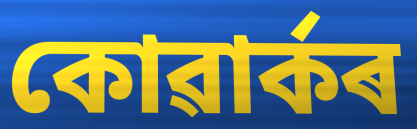
কোৱাৰ্কৰ